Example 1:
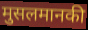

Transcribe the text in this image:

मुसलमानकी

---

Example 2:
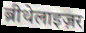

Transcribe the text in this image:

ब्रीथेलाइज़र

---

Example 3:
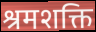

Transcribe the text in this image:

श्रमशक्ति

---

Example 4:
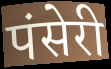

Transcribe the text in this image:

पंसेरी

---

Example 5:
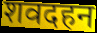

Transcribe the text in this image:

शवदहन